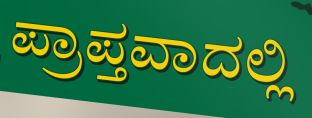
ಪ್ರಾಪ್ತವಾದಲ್ಲಿ